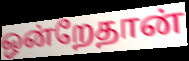
ஒன்றேதான்